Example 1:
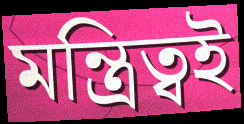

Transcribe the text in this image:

মন্ত্রিত্বই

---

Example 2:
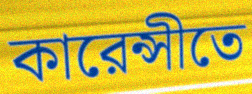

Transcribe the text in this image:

কারেন্সীতে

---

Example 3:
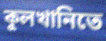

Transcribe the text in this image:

কুলখানিতে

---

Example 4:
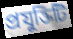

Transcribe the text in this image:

প্রযুক্তিটি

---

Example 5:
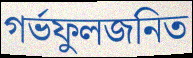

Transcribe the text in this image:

গর্ভফুলজনিত